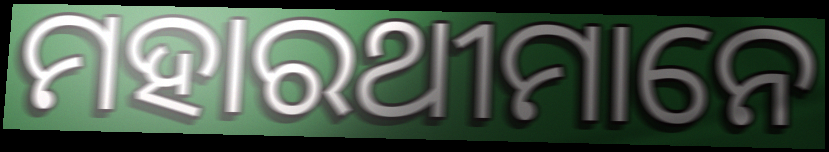
ମହାରଥୀମାନେ